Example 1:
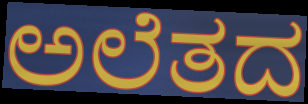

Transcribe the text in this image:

ಅಲೆತದ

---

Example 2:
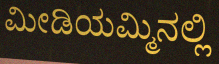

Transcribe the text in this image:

ಮೀಡಿಯಮ್ಮಿನಲ್ಲಿ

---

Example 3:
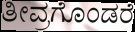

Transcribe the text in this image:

ತೀವ್ರಗೊಂಡರೆ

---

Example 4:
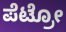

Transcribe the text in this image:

ಪೆಟ್ರೋ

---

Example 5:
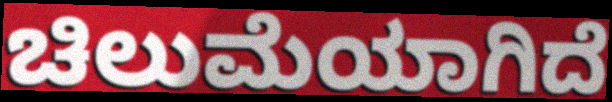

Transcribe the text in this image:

ಚಿಲುಮೆಯಾಗಿದೆ